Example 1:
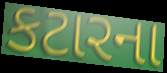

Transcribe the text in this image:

કટારના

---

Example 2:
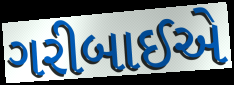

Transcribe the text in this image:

ગરીબાઈએ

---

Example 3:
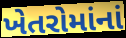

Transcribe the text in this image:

ખેતરોમાંનાં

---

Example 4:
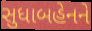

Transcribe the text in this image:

સુધાબહેનને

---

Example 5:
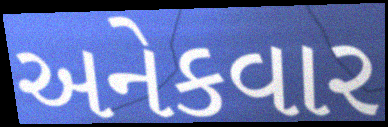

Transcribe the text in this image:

અનેકવાર